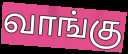
வாங்கு